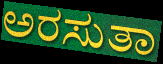
ಅರಸುತಾ